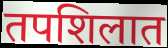
तपशिलात